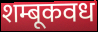
शम्बूकवध